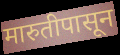
मारुतीपासून